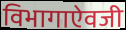
विभागाऐवजी